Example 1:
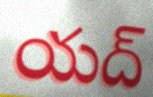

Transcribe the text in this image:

యద్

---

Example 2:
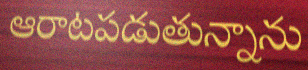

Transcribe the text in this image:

ఆరాటపడుతున్నాను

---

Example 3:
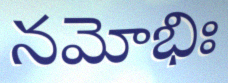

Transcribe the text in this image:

నమోభిః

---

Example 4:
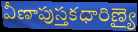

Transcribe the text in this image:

వీణాపుస్తకధారిణ్యై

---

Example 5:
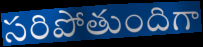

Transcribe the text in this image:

సరిపోతుందిగా